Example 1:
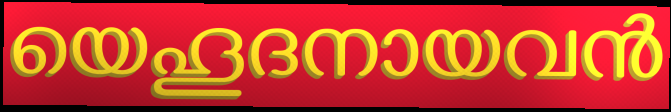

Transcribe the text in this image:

യെഹൂദനായവൻ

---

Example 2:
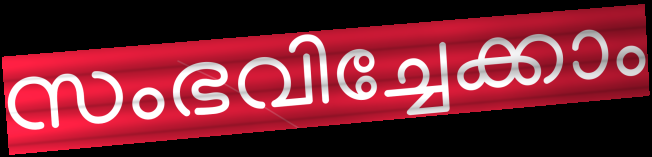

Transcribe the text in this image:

സംഭവിച്ചേക്കാം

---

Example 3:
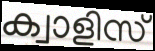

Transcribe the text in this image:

ക്വാളിസ്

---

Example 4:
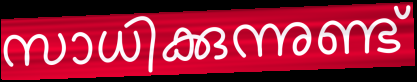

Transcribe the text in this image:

സാധിക്കുന്നുണ്ട്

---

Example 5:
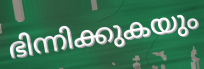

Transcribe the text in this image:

ഭിന്നിക്കുകയും